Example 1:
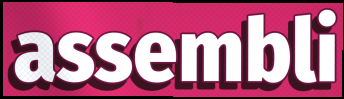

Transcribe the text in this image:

assembli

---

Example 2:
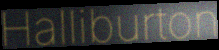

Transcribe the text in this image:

Halliburton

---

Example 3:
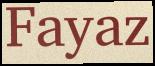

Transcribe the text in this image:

Fayaz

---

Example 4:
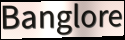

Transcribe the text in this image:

Banglore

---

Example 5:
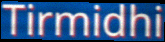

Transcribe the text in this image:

Tirmidhi